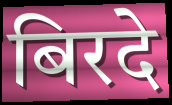
बिरदे